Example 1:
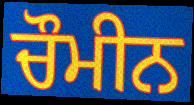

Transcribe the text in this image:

ਚੌਮੀਨ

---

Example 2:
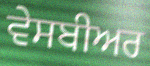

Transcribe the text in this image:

ਵੇਸਬੀਅਰ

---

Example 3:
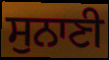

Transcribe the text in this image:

ਸੁਨਾਣੀ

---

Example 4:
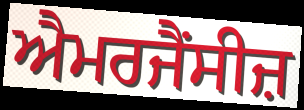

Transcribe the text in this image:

ਐਮਰਜੈਂਸੀਜ਼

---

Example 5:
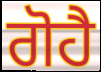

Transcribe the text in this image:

ਗੋਹੈ